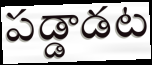
పడ్డాడట